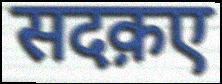
सदक़ए